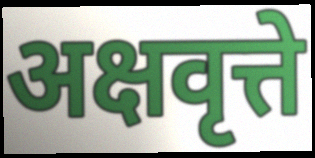
अक्षवृत्ते